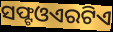
ସଫ୍ଟଓଏରଟିଏ